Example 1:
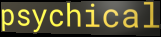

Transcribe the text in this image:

psychical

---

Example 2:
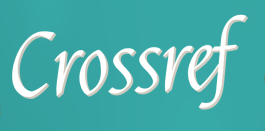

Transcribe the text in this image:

Crossref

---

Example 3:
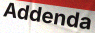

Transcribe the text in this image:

Addenda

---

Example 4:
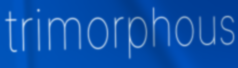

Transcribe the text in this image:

trimorphous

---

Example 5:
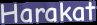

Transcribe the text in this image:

Harakat